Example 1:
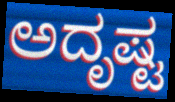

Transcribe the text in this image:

ಅದೃಷ್ಟ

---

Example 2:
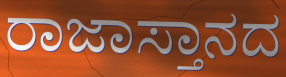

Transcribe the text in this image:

ರಾಜಾಸ್ತಾನದ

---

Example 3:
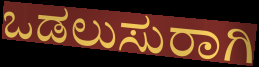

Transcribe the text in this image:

ಒಡಲುಸುರಾಗಿ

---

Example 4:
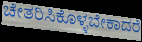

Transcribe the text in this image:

ಚೇತರಿಸಿಕೊಳ್ಳಬೇಕಾದರೆ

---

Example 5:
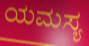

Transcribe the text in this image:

ಯಮಸ್ಯ